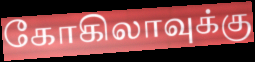
கோகிலாவுக்கு